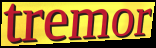
tremor